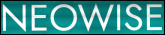
NEOWISE